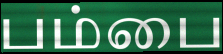
பம்பை